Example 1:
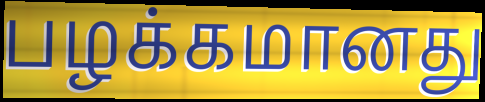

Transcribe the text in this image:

பழக்கமானது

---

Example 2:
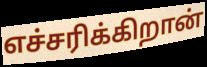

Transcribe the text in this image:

எச்சரிக்கிறான்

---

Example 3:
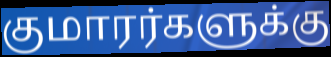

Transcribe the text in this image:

குமாரர்களுக்கு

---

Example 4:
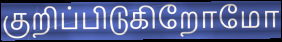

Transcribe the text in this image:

குறிப்பிடுகிறோமோ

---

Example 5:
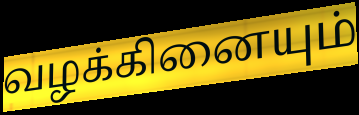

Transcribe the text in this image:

வழக்கினையும்